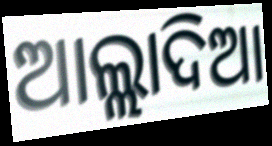
ଆଲ୍ଲାଦିଆ